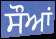
ਸੌਆਂ